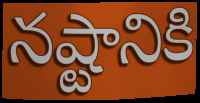
నష్టానికి